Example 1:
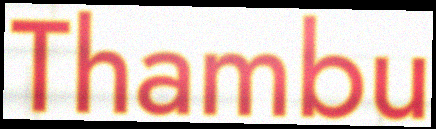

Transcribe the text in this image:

Thambu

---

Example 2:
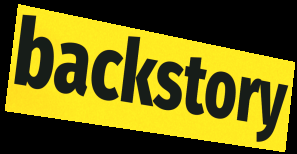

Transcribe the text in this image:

backstory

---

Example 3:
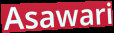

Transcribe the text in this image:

Asawari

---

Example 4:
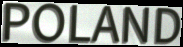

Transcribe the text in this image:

POLAND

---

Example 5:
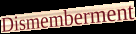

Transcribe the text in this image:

Dismemberment